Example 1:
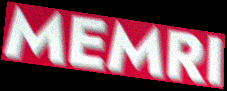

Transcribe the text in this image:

MEMRI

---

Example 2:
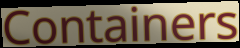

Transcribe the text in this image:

Containers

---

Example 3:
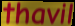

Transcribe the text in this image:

thavil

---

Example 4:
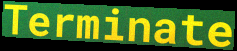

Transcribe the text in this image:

Terminate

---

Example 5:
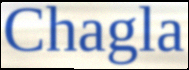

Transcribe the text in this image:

Chagla